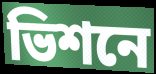
ভিশনে